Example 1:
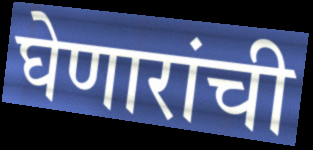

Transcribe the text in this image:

घेणारांची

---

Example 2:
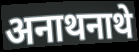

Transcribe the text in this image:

अनाथनाथे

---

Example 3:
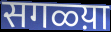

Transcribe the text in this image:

सगळ्य़ा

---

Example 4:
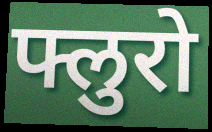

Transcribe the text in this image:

फ्लुरो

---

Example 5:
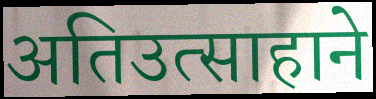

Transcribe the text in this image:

अतिउत्साहाने